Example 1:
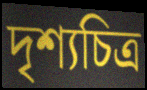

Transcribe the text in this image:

দৃশ্যচিত্র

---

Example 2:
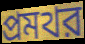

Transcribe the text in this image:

প্রমথর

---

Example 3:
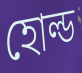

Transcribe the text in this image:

হোল্ড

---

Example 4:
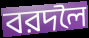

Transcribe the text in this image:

বরদলৈ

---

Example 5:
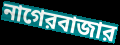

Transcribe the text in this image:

নাগেরবাজার